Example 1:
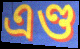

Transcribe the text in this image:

এণ্ড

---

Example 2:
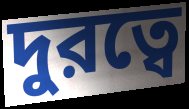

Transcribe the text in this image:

দুরত্বে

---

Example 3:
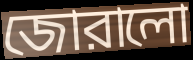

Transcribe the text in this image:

জোরালো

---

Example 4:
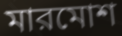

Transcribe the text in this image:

মারমোশ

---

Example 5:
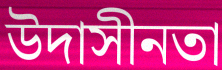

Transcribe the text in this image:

উদাসীনতা